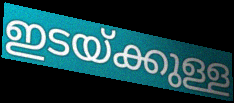
ഇടയ്ക്കുള്ള